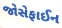
જોસેફાઈન